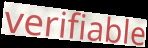
verifiable